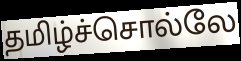
தமிழ்ச்சொல்லே